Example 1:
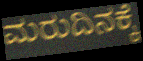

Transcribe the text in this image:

ಮರುದಿನಕ್ಕೆ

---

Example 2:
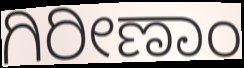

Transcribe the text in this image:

ಗಿರೀಣಾಂ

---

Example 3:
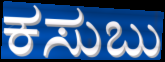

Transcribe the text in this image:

ಕಸುಬು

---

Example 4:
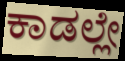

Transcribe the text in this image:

ಕಾಡಲ್ಲೇ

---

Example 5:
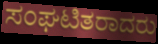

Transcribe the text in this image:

ಸಂಘಟಿತರಾದರು